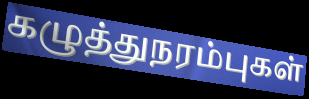
கழுத்துநரம்புகள்